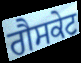
ਗੈਸਕੇਟ